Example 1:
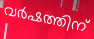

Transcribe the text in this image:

വർഷത്തിന്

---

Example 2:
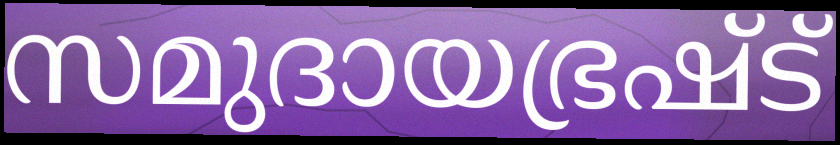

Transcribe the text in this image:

സമുദായഭ്രഷ്ട്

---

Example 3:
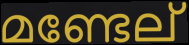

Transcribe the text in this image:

മണ്ടേല്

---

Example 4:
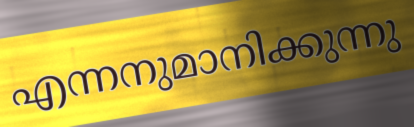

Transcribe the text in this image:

എന്നനുമാനിക്കുന്നു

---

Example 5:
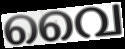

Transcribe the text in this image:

വൈ